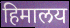
हिमालय